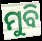
ମୁବି